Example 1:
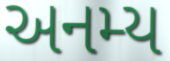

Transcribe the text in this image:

અનમ્ય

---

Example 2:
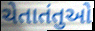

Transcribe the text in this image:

ચેતાતંતુઓ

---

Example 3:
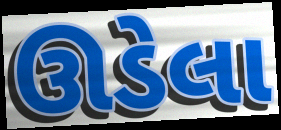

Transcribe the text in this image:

ઊડેલા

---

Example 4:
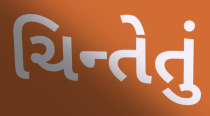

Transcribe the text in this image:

ચિન્તેતું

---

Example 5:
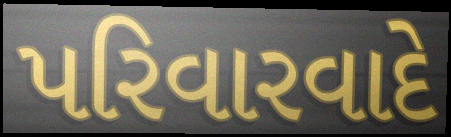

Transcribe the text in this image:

પરિવારવાદે